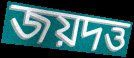
জয়দত্ত